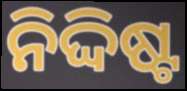
ନିଦ୍ଦିଷ୍ଟ